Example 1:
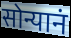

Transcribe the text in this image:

सोन्यानं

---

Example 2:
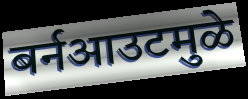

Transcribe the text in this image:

बर्नआउटमुळे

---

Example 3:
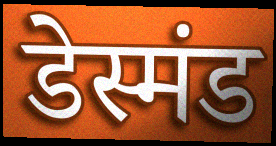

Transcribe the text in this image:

डेस्मंड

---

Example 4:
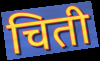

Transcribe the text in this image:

चिती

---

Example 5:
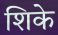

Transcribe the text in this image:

शिके